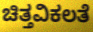
ಚಿತ್ತವಿಕಲತೆ